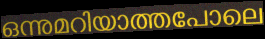
ഒന്നുമറിയാത്തപോലെ